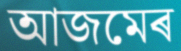
আজমেৰ